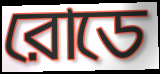
রোডে